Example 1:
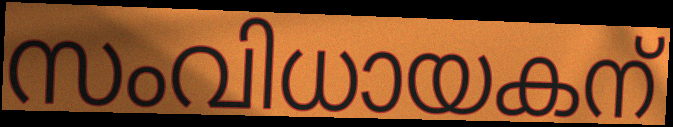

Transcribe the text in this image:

സംവിധായകന്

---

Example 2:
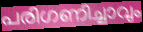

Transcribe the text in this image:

പരിഗണിച്ചാവും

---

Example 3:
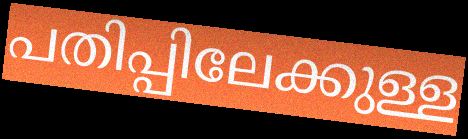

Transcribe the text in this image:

പതിപ്പിലേക്കുള്ള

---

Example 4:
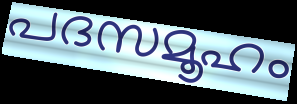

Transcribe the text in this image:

പദസമൂഹം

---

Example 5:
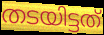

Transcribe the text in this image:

തടയിട്ടത്